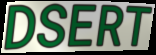
DSERT